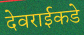
देवराईकडे